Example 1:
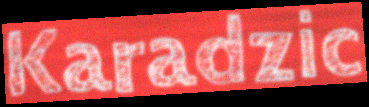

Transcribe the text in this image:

Karadzic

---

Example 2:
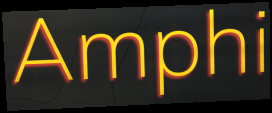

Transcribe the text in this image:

Amphi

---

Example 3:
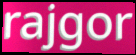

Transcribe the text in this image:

rajgor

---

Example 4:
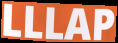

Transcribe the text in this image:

LLLAP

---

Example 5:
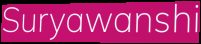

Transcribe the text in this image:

Suryawanshi